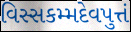
વિસ્સકમ્મદેવપુત્તં